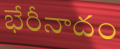
భేరీనాదం